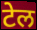
टेल